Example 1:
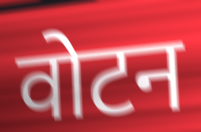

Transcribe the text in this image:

वोटन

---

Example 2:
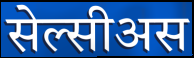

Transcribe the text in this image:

सेल्सीअस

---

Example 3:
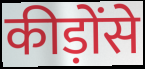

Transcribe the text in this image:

कीड़ोंसे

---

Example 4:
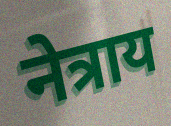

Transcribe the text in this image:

नेत्राय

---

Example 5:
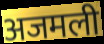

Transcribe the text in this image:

अजमली